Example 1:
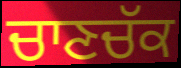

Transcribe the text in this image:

ਚਾਣਚੱਕ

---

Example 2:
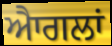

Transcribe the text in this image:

ਐਾਗਲਾਂ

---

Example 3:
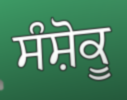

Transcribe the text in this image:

ਸੰਸ਼ੋਕੂ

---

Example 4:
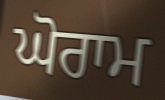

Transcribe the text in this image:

ਘੋਰਾਮ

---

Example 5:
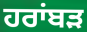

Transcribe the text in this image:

ਹਰਾਂਬੜ